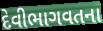
દેવીભાગવતના